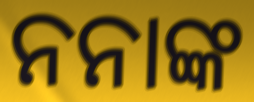
ନନାଙ୍କ